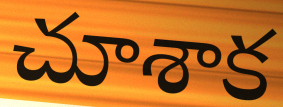
చూశాక